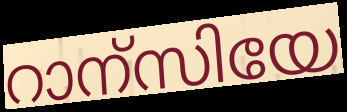
റാന്സിയേ